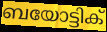
ബയോട്ടിക്